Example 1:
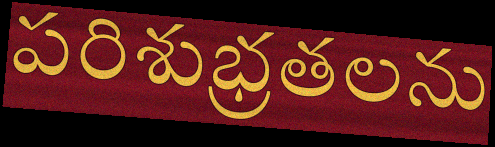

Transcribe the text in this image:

పరిశుభ్రతలను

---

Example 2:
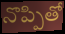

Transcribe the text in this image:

నొప్పితో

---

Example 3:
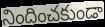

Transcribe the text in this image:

నిందించకుండా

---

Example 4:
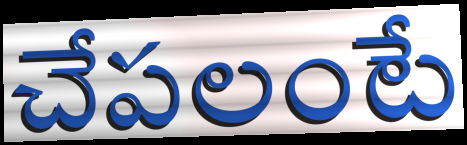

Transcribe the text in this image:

చేపలంటే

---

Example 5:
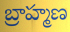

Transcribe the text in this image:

బ్రాహ్మణ